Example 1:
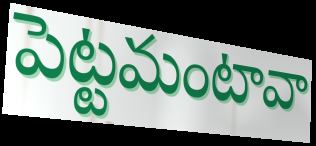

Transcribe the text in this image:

పెట్టమంటావా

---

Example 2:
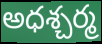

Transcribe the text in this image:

అధశ్చర్మ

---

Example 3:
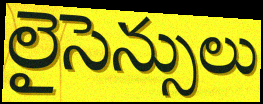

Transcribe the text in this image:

లైసెన్సులు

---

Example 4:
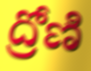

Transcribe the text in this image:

ద్రోణి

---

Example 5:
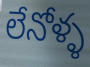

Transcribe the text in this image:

లేనోళ్ళ